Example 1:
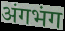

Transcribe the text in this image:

अंगभंग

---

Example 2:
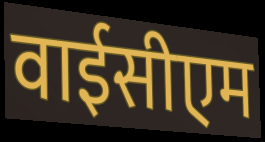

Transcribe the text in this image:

वाईसीएम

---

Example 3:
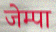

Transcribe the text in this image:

जेम्पा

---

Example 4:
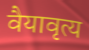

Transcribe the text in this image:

वैयावृत्य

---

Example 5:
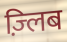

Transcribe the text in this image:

ज़्लिब